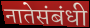
नातेसंबंधी